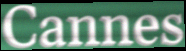
Cannes